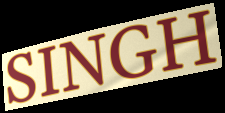
SINGH